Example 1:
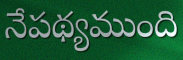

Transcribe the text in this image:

నేపథ్యముంది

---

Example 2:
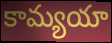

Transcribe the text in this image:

కామ్యయా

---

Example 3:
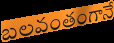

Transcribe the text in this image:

బలవంతంగానే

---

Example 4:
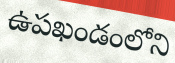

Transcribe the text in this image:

ఉపఖండంలోని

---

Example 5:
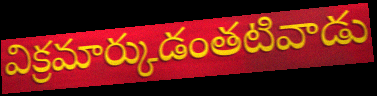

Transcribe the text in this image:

విక్రమార్కుడంతటివాడు